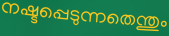
നഷ്ടപ്പെടുന്നതെന്തും